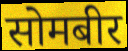
सोमबीर